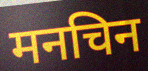
मनचिन